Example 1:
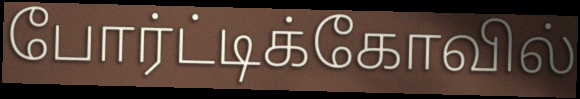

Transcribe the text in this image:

போர்ட்டிக்கோவில்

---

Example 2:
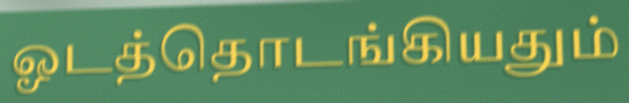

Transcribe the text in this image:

ஓடத்தொடங்கியதும்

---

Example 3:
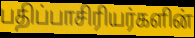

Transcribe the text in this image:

பதிப்பாசிரியர்களின்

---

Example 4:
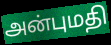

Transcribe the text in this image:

அன்புமதி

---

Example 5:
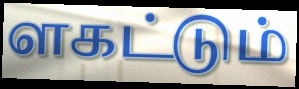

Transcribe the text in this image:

ளகட்டும்